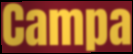
Campa